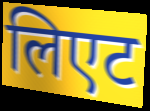
लिएट